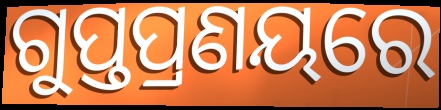
ଗୁପ୍ତପ୍ରଣୟରେ